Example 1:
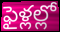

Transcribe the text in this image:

ఫైళ్లల్లో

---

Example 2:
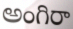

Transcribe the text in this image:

అంగిరా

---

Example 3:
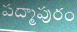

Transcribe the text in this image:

పద్మాపురం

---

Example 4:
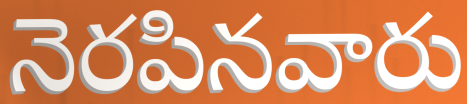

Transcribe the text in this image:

నెరపినవారు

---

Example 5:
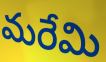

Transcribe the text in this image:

మరేమి